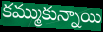
కమ్ముకున్నాయి